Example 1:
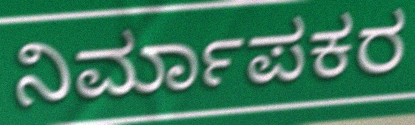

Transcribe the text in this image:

ನಿರ್ಮಾಪಕರ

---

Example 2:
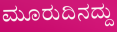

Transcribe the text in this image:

ಮೂರುದಿನದ್ದು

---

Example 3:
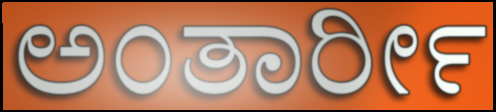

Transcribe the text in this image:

ಅಂತಾರ್ರೀ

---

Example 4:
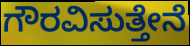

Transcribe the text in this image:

ಗೌರವಿಸುತ್ತೇನೆ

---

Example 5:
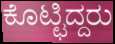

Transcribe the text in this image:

ಕೊಟ್ಟಿದ್ದರು